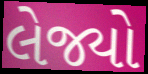
લેજ્યો